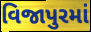
વિજાપુરમાં